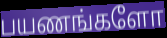
பயணங்களோ